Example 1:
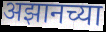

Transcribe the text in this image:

अझानच्या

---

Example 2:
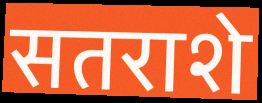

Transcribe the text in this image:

सतराशे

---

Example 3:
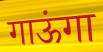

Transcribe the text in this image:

गाऊंगा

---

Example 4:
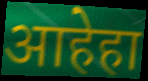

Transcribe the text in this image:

आहेहा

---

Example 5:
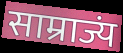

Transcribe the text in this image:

साम्राज्यं